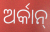
ଅର୍କାନ୍